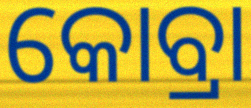
କୋବ୍ରା